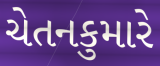
ચેતનકુમારે